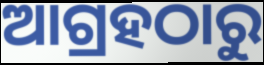
ଆଗ୍ରହଠାରୁ